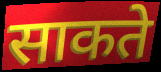
साकते